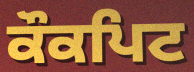
ਕੌਕਪਿਟ